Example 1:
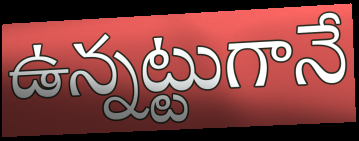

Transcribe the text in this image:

ఉన్నట్టుగానే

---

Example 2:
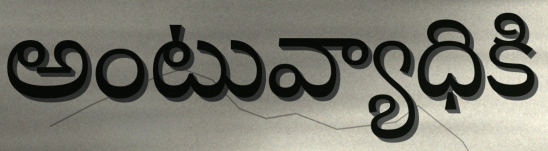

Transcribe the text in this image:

అంటువ్యాధికి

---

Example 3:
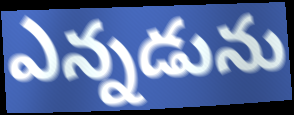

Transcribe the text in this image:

ఎన్నడును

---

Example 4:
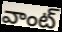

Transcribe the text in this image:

వాంట్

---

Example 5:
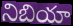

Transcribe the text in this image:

నిబియా